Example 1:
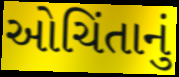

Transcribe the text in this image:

ઓચિંતાનું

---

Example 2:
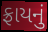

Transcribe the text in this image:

ફ્રાયનું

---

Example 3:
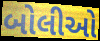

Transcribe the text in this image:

બોલીઓ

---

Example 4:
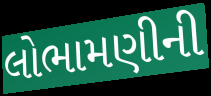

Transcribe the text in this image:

લોભામણીની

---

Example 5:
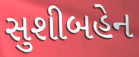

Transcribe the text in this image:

સુશીબહેન